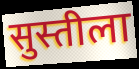
सुस्तीला